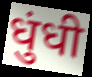
धुंधी